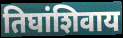
तिघांशिवाय